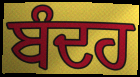
ਬੰਦਹ